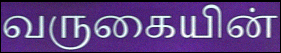
வருகையின்